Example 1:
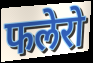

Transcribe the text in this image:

फलेरो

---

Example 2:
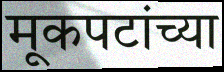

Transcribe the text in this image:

मूकपटांच्या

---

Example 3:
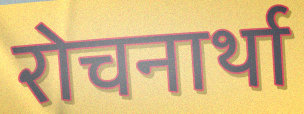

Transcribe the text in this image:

रोचनार्था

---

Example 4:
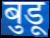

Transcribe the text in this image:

बुडू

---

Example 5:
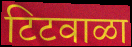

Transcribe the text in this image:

टिटवाळा